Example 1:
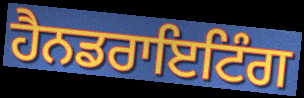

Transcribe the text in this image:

ਹੈਨਡਰਾਇਟਿੰਗ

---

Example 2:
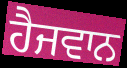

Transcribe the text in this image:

ਹੈਜਵਾਨ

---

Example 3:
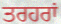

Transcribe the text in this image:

ਤਰਹਰਾਂ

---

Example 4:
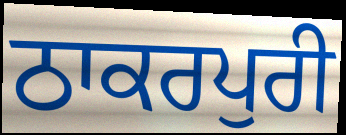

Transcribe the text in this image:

ਠਾਕਰਪੁਰੀ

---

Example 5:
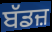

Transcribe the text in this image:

ਬੱਡਜ਼